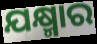
ଯକ୍ଷ୍ମାର